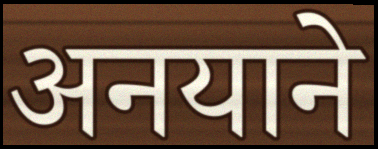
अनयाने